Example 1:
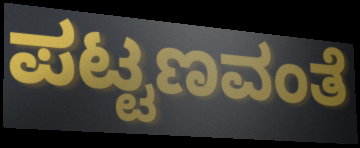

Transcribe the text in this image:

ಪಟ್ಟಣವಂತೆ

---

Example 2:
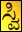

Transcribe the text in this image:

ಸ್ವಿ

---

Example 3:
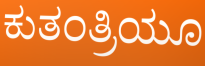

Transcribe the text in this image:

ಕುತಂತ್ರಿಯೂ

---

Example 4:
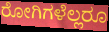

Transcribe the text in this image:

ರೋಗಿಗಳೆಲ್ಲರೂ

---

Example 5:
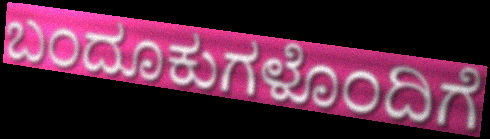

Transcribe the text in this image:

ಬಂದೂಕುಗಳೊಂದಿಗೆ